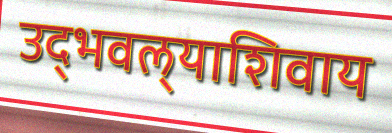
उद्भवल्याशिवाय